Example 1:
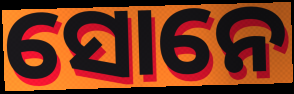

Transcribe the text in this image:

ସୋନେ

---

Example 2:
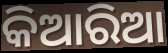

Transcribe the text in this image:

କିଆରିଆ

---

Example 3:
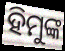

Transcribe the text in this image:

ହିମୁଙ୍କ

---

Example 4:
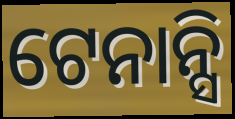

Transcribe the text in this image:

ଟେନାନ୍ସି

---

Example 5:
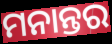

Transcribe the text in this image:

ମନାନ୍ତର